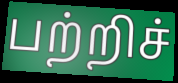
பற்றிச்